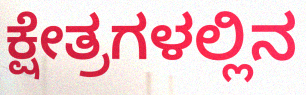
ಕ್ಷೇತ್ರಗಳಲ್ಲಿನ